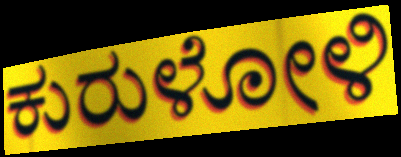
ಕುರುಳೋಳಿ